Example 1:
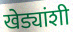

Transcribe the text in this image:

खेड्यांशी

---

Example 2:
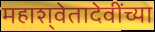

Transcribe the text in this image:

महाश्वेतादेवींच्या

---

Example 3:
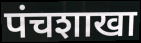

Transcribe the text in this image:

पंचशाखा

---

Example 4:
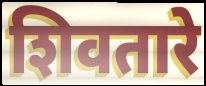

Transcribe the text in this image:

शिवतारे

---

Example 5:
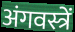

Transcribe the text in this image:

अंगवस्त्रें